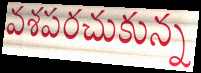
వశపరచుకున్న